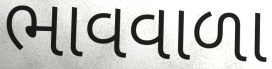
ભાવવાળા